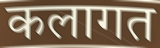
कलागत